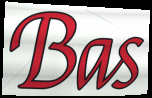
Bas